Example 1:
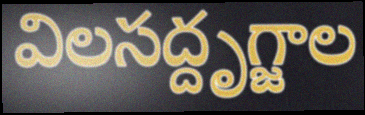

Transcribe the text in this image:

విలసద్దృగ్జాల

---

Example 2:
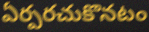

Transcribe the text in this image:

ఏర్పరచుకొనటం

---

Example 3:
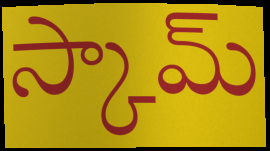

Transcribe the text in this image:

స్కామ్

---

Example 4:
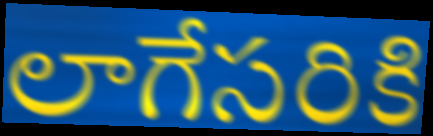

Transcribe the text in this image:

లాగేసరికి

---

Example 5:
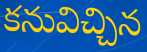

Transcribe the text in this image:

కనువిచ్చిన